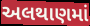
અલથાણમાં